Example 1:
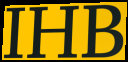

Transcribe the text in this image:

IHB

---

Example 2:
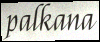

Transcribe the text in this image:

palkana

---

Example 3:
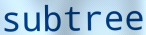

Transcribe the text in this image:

subtree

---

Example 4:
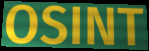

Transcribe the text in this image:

OSINT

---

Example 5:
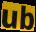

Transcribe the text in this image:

ub